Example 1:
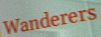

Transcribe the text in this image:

Wanderers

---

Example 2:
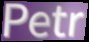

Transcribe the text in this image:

Petr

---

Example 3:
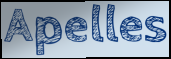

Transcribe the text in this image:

Apelles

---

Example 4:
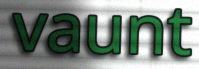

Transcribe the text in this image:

vaunt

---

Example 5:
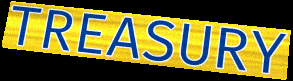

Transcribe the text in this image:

TREASURY